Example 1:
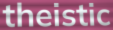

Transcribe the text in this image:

theistic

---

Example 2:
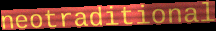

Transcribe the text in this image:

neotraditional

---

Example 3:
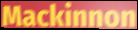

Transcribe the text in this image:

Mackinnon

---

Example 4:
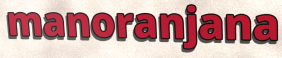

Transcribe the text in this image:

manoranjana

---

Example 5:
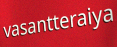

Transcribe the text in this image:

vasantteraiya